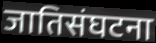
जातिसंघटना